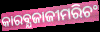
କାରଵ୍ଯଜାଜୀମରିଚଂ